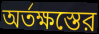
অর্তক্ষস্তের